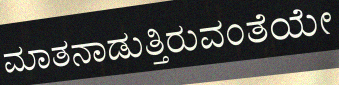
ಮಾತನಾಡುತ್ತಿರುವಂತೆಯೇ